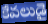
కేవలుడై